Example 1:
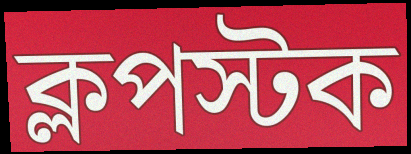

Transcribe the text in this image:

ক্লপস্টক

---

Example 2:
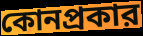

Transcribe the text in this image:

কোনপ্রকার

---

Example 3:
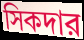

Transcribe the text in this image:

সিকদার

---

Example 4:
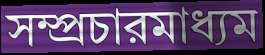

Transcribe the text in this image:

সম্প্রচারমাধ্যম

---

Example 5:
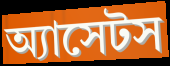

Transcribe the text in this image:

অ্যাসেটস